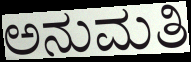
ಅನುಮತಿ